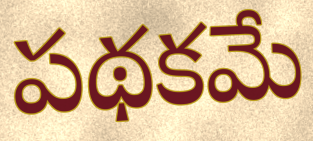
పథకమే